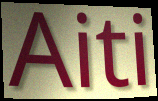
Aiti